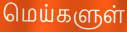
மெய்களுள்